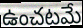
ఉంచటమే